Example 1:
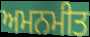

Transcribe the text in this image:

ਅਮਨਮੀਤ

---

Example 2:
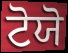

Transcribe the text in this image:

ਟੋਯੋ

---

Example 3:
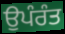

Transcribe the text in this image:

ਉਪੰਰੰਤ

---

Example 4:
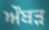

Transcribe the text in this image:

ਔਬੜ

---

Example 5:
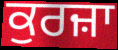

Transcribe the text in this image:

ਕੁਰਜ਼ਾ